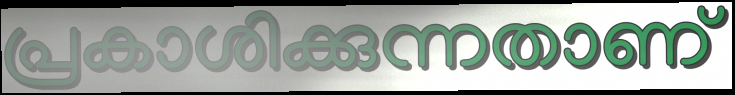
പ്രകാശിക്കുന്നതാണ്